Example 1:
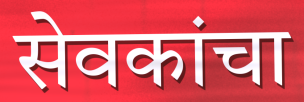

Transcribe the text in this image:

सेवकांचा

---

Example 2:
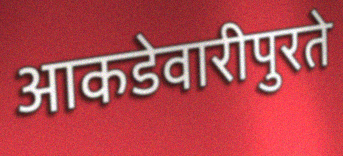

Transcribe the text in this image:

आकडेवारीपुरते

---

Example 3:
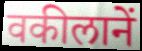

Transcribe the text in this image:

वकीलानें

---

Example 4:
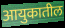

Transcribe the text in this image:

आयुकातील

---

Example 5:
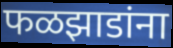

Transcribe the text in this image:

फळझाडांना